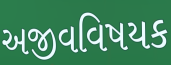
અજીવવિષયક